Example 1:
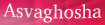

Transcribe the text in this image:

Asvaghosha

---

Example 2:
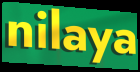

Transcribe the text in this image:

nilaya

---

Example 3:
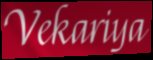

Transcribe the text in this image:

Vekariya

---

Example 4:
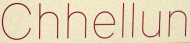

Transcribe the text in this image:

Chhellun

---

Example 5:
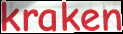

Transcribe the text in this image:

kraken